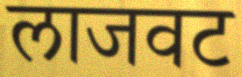
लाजवट